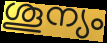
ശൂന്യം